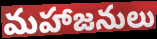
మహాజనులు